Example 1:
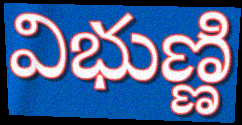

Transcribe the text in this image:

విభుణ్ణి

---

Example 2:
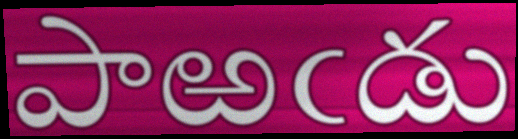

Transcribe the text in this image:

పాఱఁడు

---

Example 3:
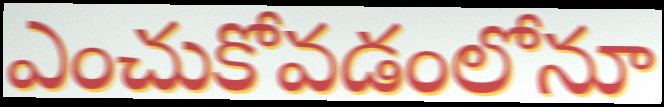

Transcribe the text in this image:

ఎంచుకోవడంలోనూ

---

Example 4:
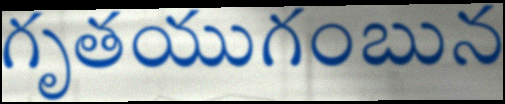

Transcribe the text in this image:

గృతయుగంబున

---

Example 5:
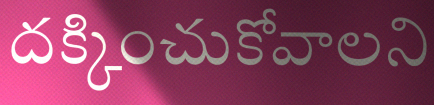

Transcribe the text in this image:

దక్కించుకోవాలని